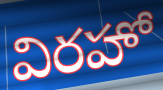
విరహో